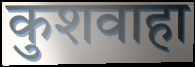
कुशवाहा